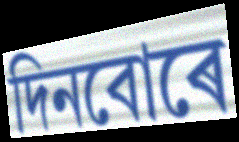
দিনবোৰে